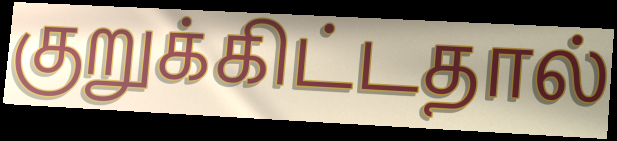
குறுக்கிட்டதால்